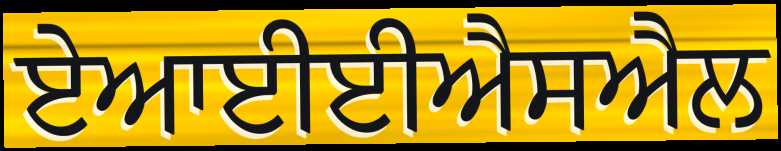
ਏਆਈਈਐਸਐਲ